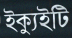
ইক্যুইটি